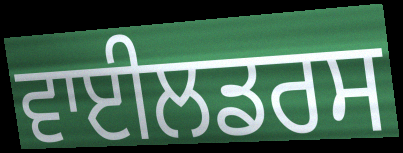
ਵਾਈਲਡਰਸ